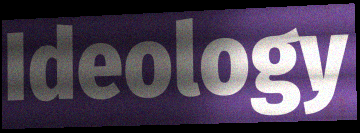
Ideology